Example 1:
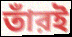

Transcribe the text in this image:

তাঁরই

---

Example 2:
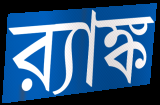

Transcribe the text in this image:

র‍্যাঙ্ক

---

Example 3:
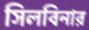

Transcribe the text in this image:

সিলবিনার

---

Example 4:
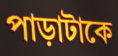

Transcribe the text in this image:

পাড়াটাকে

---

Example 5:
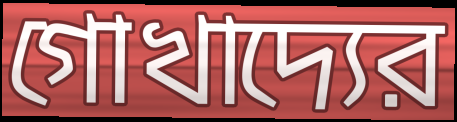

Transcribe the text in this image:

গোখাদ্যের